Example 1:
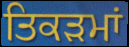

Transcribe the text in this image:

ਤਿਕੜਮਾਂ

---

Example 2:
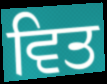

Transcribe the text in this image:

ਵਿਤ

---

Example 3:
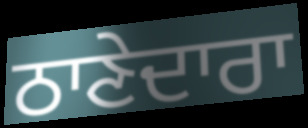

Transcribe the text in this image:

ਠਾਣੇਦਾਰਾ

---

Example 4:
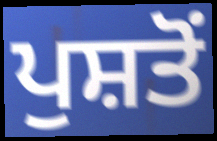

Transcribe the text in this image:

ਪੁਸ਼ਤੋਂ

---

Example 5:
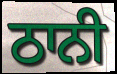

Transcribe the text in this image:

ਠਾਨੀ